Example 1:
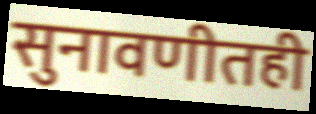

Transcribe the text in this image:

सुनावणीतही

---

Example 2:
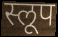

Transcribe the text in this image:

स्लूप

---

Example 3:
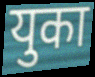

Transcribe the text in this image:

युका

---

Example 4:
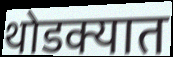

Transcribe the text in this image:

थोडक्यात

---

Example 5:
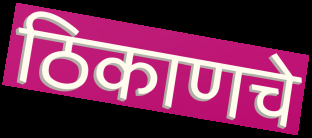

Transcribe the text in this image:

ठिकाणचे